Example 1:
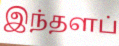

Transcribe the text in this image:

இந்தளப்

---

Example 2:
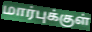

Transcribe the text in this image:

மார்புக்குள்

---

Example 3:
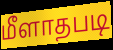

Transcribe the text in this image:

மீளாதபடி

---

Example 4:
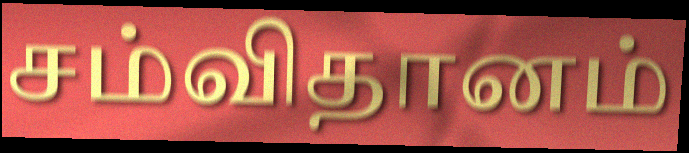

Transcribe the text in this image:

சம்விதானம்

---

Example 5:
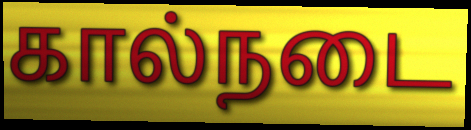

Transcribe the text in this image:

கால்நடை